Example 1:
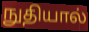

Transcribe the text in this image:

நுதியால்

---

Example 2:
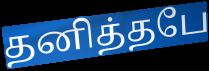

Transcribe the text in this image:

தனித்தபே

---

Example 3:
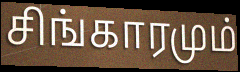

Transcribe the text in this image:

சிங்காரமும்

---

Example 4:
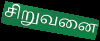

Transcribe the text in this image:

சிறுவனை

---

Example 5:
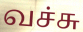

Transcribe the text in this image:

வச்சு